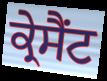
ਕ੍ਰੇਸੈਂਟ